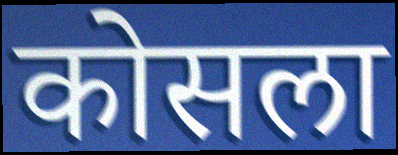
कोसला